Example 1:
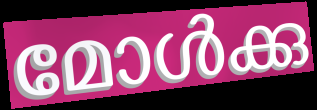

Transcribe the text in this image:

മോൾക്കു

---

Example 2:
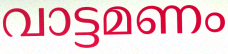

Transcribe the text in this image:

വാട്ടമണം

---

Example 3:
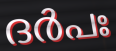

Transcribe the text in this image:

ദർപഃ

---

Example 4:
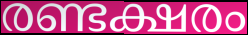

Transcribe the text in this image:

രണ്ടക്ഷരം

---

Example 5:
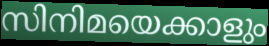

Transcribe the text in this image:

സിനിമയെക്കാളും